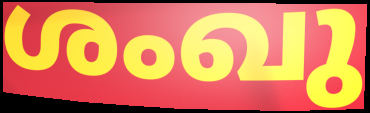
ശംഖു